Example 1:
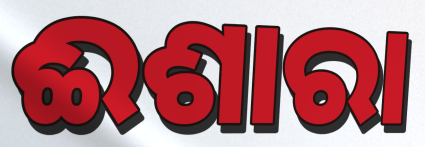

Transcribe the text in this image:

ଈଶାରା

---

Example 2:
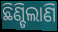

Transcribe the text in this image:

ଛିଣ୍ଡିଲାଣି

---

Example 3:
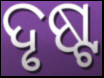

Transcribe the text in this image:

ଦୃଷ୍ଟ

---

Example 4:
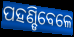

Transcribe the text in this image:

ପହଣ୍ଡିବେଳେ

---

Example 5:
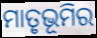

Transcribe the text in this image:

ମାତୃଭୂମିର